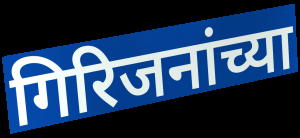
गिरिजनांच्या